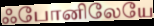
ஃபோனிலேயே